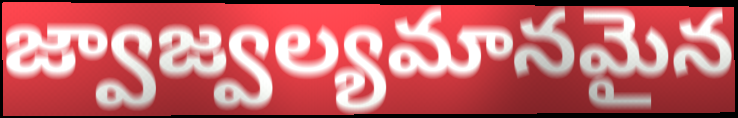
జ్వాజ్వల్యమానమైన